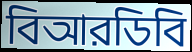
বিআরডিবি